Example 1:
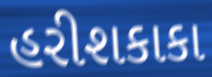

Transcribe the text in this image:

હરીશકાકા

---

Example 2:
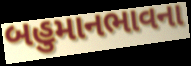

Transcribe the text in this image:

બહુમાનભાવના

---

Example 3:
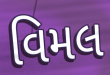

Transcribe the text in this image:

વિમલ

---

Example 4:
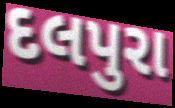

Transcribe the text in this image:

દલપુરા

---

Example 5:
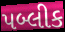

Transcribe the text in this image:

પબ્લીક